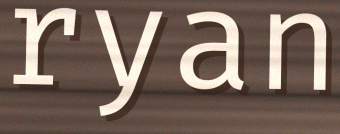
ryan